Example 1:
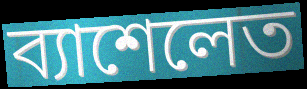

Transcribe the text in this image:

ব্যাশেলেত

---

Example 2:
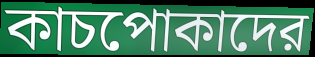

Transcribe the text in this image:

কাচপোকাদের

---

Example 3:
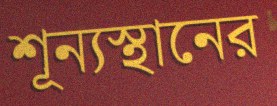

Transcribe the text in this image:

শূন্যস্থানের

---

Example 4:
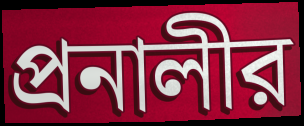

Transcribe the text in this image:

প্রনালীর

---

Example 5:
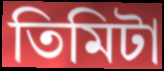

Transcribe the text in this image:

তিমিটা